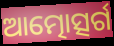
ଆତ୍ମୋତ୍ସର୍ଗ